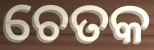
ଚେତକ